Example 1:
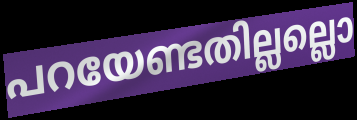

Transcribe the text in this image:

പറയേണ്ടതില്ലല്ലൊ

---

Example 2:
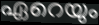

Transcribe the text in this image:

ഏറെയും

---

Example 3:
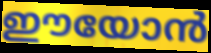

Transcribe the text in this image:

ഈയോൻ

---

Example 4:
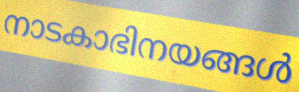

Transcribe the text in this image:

നാടകാഭിനയങ്ങൾ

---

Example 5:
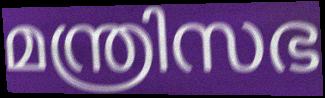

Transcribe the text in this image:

മന്ത്രിസഭ